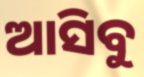
ଆସିବୁ